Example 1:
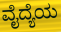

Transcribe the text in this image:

ವೈದ್ಯೆಯ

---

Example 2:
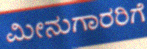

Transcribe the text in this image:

ಮೀನುಗಾರರಿಗೆ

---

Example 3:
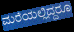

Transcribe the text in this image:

ಮರೆಯಲ್ಲಿದ್ದರೂ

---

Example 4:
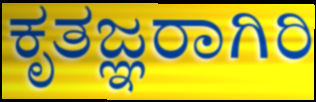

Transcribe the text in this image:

ಕೃತಜ್ಞರಾಗಿರಿ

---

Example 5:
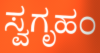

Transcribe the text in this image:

ಸ್ವಗೃಹಂ